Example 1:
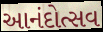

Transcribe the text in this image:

આનંદોત્સવ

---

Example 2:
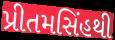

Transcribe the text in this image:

પ્રીતમસિંહથી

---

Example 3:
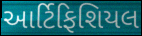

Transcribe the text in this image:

આર્ટિફિશિયલ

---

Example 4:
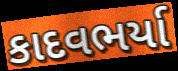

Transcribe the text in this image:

કાદવભર્યા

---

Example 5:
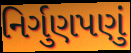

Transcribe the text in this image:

નિર્ગુણપણું